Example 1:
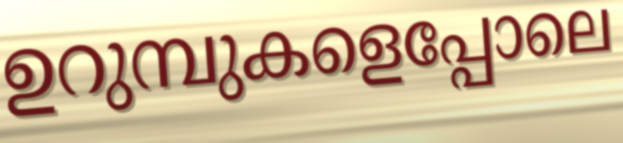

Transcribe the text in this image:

ഉറുമ്പുകളെപ്പോലെ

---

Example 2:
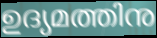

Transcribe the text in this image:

ഉദ്യമത്തിനു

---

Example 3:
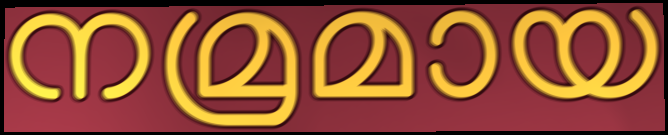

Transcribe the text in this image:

നമ്രമായ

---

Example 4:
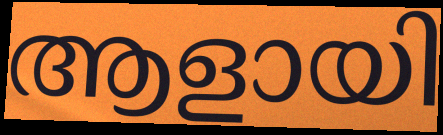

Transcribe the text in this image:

ആളായി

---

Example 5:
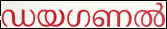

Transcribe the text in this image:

ഡയഗണൽ